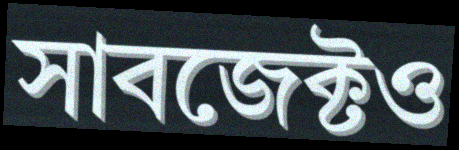
সাবজেক্টও